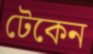
টেকেন